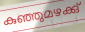
കുഞ്ഞുമഴക്കു്